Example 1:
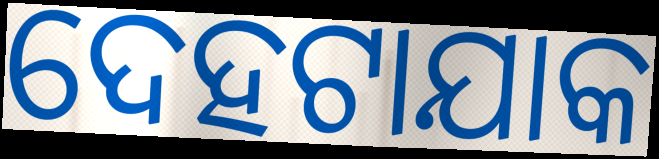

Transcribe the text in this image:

ଦେହଟାଯାକ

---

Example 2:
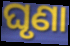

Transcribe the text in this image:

ଘୃଣା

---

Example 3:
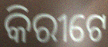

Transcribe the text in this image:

କିରୀଟେ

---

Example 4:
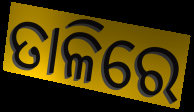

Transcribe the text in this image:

ତାଳିରେ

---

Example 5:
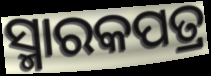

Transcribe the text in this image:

ସ୍ମାରକପତ୍ର